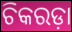
ଚିକରଡ଼ା